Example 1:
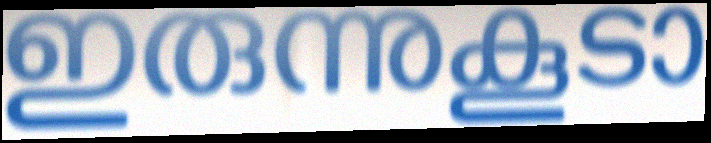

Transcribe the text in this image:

ഇരുന്നുകൂടാ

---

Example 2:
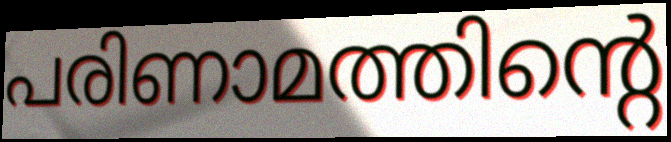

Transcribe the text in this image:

പരിണാമത്തിന്റെ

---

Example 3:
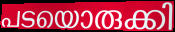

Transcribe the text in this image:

പടയൊരുക്കി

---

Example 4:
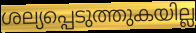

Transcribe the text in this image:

ശല്യപ്പെടുത്തുകയില്ല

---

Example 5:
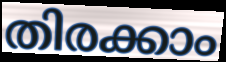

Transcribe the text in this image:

തിരക്കാം